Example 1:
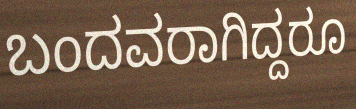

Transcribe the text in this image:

ಬಂದವರಾಗಿದ್ದರೂ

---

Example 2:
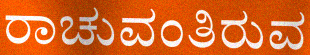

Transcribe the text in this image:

ರಾಚುವಂತಿರುವ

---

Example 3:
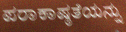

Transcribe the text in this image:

ಪರಾಕಾಷ್ಠತೆಯನ್ನು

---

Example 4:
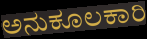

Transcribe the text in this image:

ಅನುಕೂಲಕಾರಿ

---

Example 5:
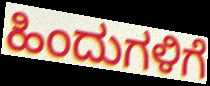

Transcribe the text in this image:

ಹಿಂದುಗಳಿಗೆ